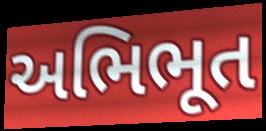
અભિભૂત